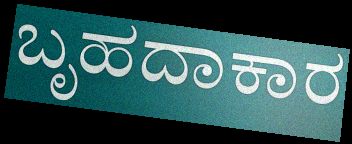
ಬೃಹದಾಕಾರ